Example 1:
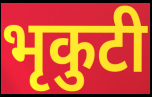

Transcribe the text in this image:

भृकुटी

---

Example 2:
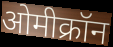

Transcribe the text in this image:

ओमीक्रॉन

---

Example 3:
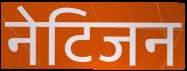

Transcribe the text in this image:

नेटिजन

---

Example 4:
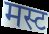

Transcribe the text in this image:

मस्ट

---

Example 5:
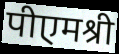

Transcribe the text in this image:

पीएमश्री